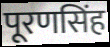
पूरणसिंह